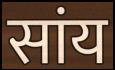
सांय